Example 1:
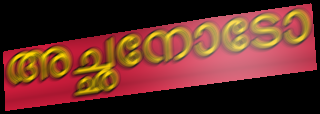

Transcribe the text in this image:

അച്ഛനോടോ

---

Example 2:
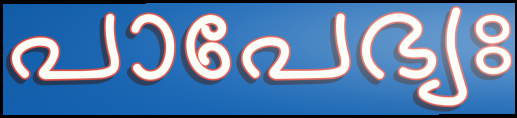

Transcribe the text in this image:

പാപേഭ്യഃ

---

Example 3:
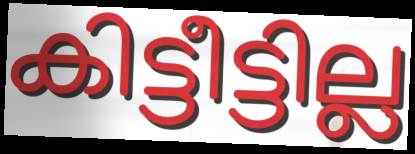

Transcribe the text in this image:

കിട്ടീട്ടില്ല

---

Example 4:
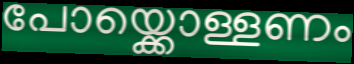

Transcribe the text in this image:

പോയ്ക്കൊള്ളണം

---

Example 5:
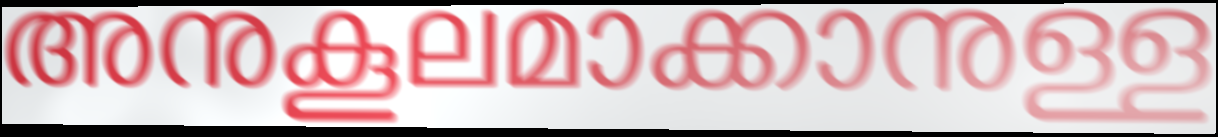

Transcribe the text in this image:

അനുകൂലമാക്കാനുള്ള